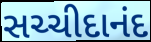
સચ્ચીદાનંદ